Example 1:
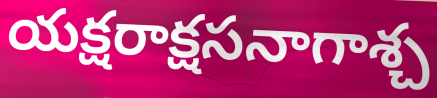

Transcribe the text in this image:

యక్షరాక్షసనాగాశ్చ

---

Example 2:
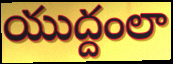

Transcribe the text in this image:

యుద్దంలా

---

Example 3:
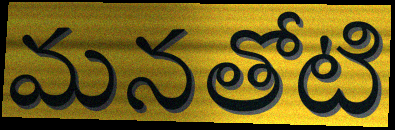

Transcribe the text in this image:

మనతోటి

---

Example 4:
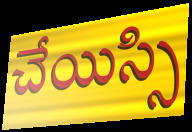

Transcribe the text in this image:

చేయిస్సి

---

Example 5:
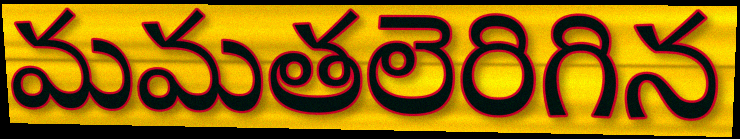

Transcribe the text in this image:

మమతలెరిగిన